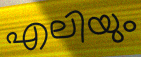
എലിയും